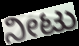
ನೀಟು